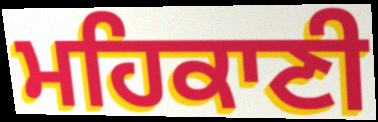
ਮਹਿਕਾਣੀ